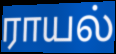
ராயல்